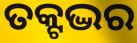
ତକ୍ଟଦ୍ଭର